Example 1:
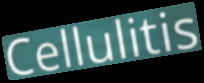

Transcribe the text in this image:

Cellulitis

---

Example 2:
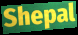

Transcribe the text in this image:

Shepal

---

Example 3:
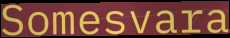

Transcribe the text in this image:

Somesvara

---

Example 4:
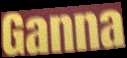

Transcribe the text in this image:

Ganna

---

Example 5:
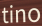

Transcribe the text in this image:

tino